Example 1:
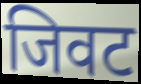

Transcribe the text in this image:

जिवट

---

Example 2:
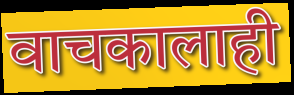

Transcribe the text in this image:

वाचकालाही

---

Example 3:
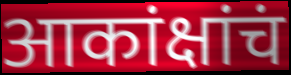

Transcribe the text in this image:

आकांक्षांचं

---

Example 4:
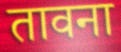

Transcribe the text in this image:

तावना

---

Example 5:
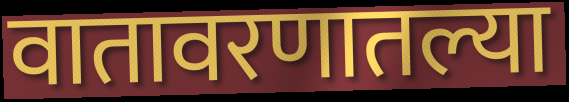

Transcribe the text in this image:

वातावरणातल्या